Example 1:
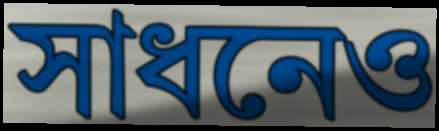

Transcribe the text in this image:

সাধনেও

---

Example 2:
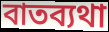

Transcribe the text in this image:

বাতব্যথা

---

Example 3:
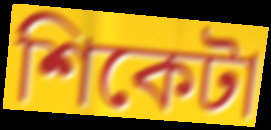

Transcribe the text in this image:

শিকেটা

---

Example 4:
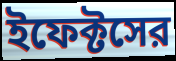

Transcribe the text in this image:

ইফেক্টসের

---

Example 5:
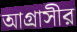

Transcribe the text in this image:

আগ্রাসীর